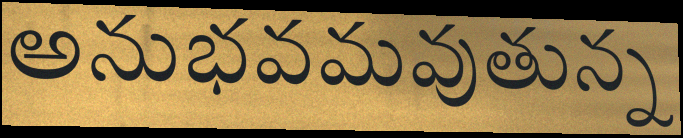
అనుభవమవుతున్న